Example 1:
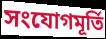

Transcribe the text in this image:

সংযোগমূর্তি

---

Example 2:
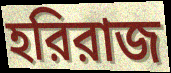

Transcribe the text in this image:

হরিরাজ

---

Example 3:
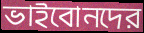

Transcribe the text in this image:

ভাইবোনদের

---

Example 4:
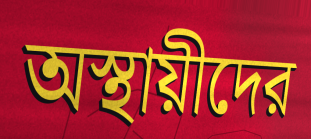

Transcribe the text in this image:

অস্থায়ীদের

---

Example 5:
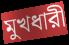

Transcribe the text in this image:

মুখধারী